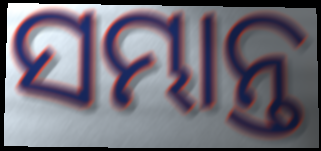
ସମ୍ଭାନ୍ତ